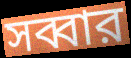
সব্বার